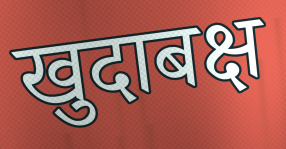
खुदाबक्ष